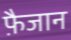
फ़ैजान